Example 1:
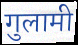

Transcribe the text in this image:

गुलामी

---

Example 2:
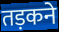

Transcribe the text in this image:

तड़कने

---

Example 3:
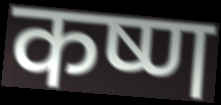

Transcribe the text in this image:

कष्ण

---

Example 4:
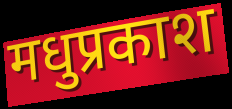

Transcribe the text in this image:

मधुप्रकाश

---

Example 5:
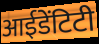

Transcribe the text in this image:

आईडेंटिटी